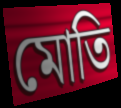
মোতি